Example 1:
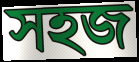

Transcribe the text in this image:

সহজ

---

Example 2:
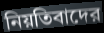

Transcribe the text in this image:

নিয়তিবাদের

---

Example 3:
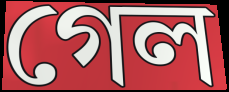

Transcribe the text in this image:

গেল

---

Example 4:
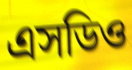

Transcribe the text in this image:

এসডিও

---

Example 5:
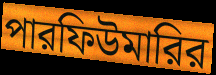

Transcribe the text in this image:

পারফিউমারির